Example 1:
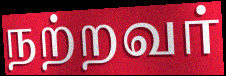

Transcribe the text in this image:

நற்றவர்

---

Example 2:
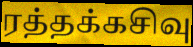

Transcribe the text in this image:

ரத்தக்கசிவு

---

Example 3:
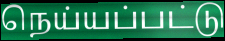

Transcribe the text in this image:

நெய்யப்பட்டு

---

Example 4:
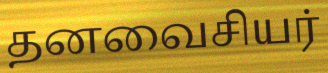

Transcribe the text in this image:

தனவைசியர்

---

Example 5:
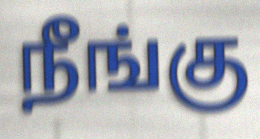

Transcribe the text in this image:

நீங்கு